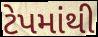
ટેપમાંથી